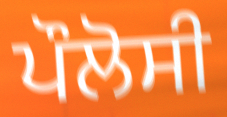
ਪੌਲੋਸੀ